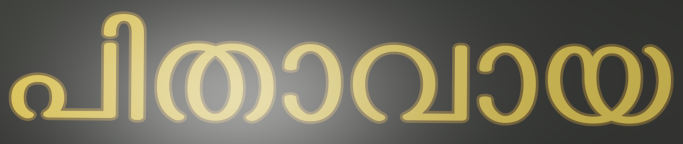
പിതാവായ